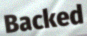
Backed